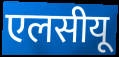
एलसीयू